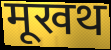
मूखथ